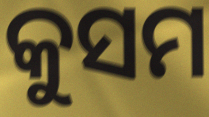
କୁସମ